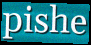
pishe